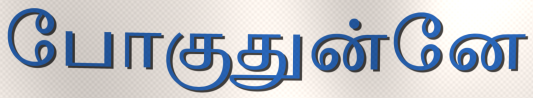
போகுதுன்னே